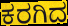
ಕರಗಿದ